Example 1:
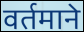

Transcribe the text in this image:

वर्तमाने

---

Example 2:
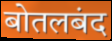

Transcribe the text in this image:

बोतलबंद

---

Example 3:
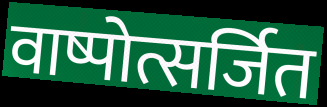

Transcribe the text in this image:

वाष्पोत्सर्जित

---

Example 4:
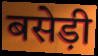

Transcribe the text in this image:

बसेड़ी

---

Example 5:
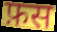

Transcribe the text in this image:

फ़स